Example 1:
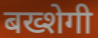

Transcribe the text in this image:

बख्शेगी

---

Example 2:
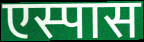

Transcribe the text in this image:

एस्पास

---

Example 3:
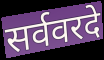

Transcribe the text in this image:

सर्ववरदे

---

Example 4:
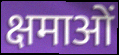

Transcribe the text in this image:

क्षमाओं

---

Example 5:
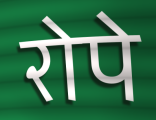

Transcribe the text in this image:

रोपे